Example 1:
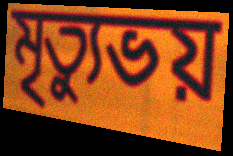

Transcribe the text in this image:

মৃত্যুভয়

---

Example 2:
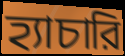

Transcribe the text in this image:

হ্যাচারি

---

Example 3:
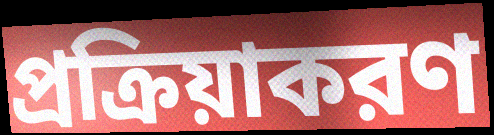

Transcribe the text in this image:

প্রক্রিয়াকরণ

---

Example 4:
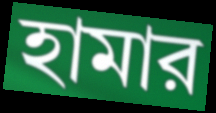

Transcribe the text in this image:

হামার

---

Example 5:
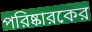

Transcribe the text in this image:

পরিষ্কারকের